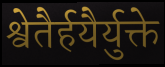
श्वेतैर्हयैर्युक्ते